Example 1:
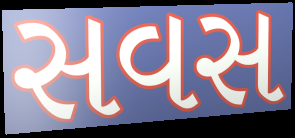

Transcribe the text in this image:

સવસ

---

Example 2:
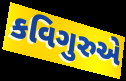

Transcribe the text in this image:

કવિગુરુએ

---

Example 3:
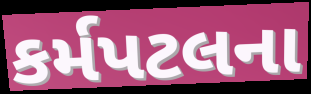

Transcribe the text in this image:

કર્મપટલના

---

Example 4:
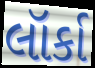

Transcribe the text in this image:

લૉર્કા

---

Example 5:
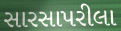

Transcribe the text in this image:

સારસાપરીલા